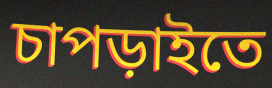
চাপড়াইতে